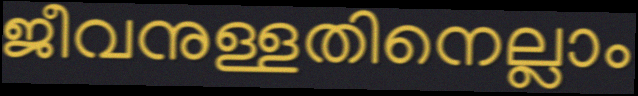
ജീവനുള്ളതിനെല്ലാം